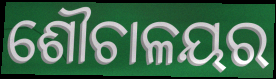
ଶୌଚାଳୟର